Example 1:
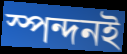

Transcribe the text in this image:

স্পন্দনই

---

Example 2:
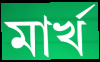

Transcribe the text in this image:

মার্খ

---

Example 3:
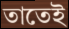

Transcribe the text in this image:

তাতেই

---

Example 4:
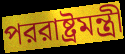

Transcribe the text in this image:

পররাষ্ট্রমন্ত্রী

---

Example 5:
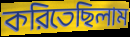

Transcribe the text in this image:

করিতেছিলাম